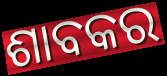
ଶାବକର